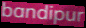
bandipur